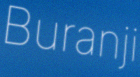
Buranji